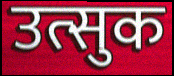
उत्‍सुक